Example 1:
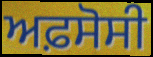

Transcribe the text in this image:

ਅਫ਼ਸੋਸੀ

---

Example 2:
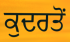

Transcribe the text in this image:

ਕੁਦਰਤੋਂ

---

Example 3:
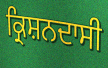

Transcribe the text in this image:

ਕ੍ਰਿਸ਼ਨਦਾਸੀ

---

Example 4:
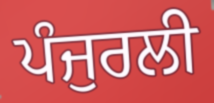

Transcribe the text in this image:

ਪੰਜੁਰਲੀ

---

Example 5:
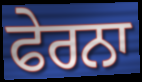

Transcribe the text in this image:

ਫੇਰਨਾ